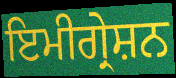
ਇਮੀਗ੍ਰੇਸ਼ਨ